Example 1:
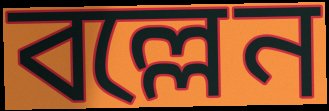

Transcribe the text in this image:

বল্লেন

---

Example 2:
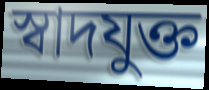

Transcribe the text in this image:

স্বাদযুক্ত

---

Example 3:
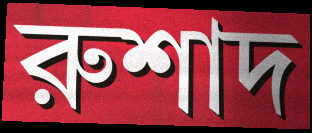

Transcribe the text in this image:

রুশাদ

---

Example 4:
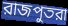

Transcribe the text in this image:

রাজপুতরা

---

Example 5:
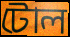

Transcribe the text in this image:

টোল